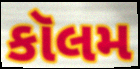
કૉલમ